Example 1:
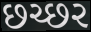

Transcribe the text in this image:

છચ્છર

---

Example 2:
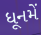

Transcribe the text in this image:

ધૂનમેં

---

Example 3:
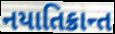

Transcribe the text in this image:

નયાતિક્રાન્ત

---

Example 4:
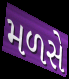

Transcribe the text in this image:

મળસે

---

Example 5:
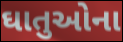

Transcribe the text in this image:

ઘાતુઓના